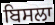
ਬਿਸਲਾ